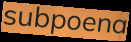
subpoena